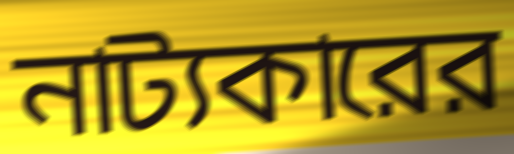
নাট্যকারের